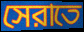
সেরাতে